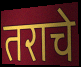
तराचे